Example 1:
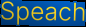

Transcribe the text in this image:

Speach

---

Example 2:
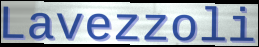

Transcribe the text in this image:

Lavezzoli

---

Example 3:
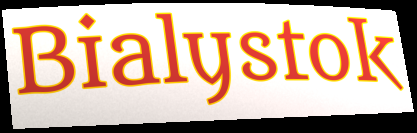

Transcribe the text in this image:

Bialystok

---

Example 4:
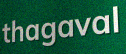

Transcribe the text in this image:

thagaval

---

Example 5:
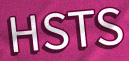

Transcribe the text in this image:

HSTS